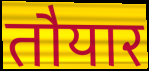
तौयार